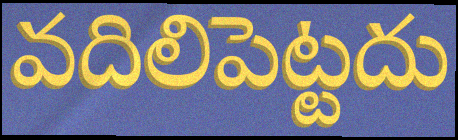
వదిలిపెట్టదు